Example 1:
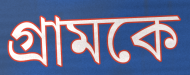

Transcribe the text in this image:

গ্রামকে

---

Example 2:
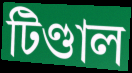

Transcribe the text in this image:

টিণ্ডাল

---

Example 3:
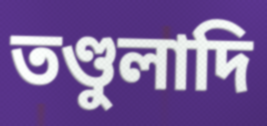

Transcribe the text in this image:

তণ্ডুলাদি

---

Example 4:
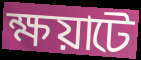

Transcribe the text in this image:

ক্ষয়াটে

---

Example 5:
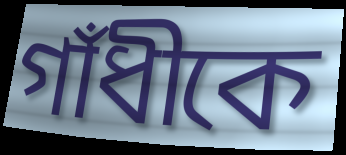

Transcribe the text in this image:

গাঁধীকে